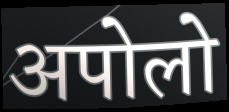
अपोलो